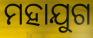
ମହାଯୁଗ